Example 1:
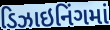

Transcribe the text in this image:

ડિઝાઇનિંગમાં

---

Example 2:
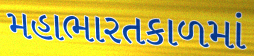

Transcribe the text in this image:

મહાભારતકાળમાં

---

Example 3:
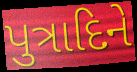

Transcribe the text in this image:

પુત્રાદિને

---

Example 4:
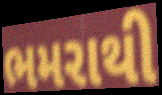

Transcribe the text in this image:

ભમરાથી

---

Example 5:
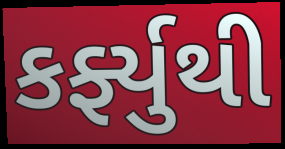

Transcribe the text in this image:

કર્ફ્યુથી